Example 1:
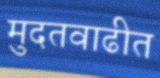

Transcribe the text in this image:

मुदतवाढीत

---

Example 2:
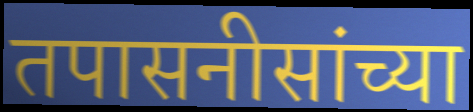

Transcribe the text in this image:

तपासनीसांच्या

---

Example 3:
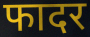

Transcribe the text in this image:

फादर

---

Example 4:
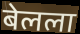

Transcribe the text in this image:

बेलला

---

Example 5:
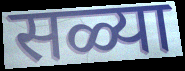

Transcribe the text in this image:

सळ्या